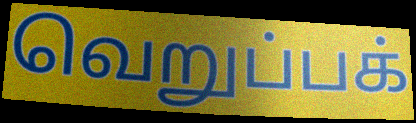
வெறுப்பக்